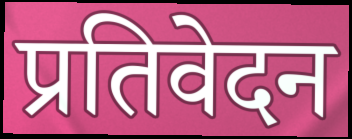
प्रतिवेदन